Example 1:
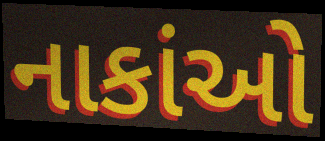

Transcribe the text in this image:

નાકાંઓ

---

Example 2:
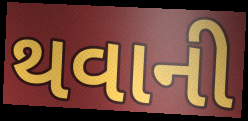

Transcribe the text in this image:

થવાની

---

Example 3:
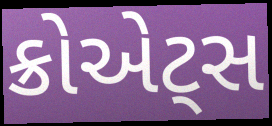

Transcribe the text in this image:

ક્રોએટ્સ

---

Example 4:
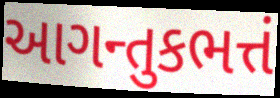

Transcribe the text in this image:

આગન્તુકભત્તં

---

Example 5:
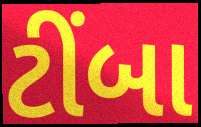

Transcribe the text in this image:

ટીંબા